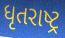
ધૃતરાષ્ટ્ર